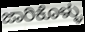
ಜಾರಿಕೊಳ್ಳು